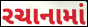
રચાનામાં